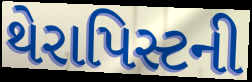
થેરાપિસ્ટની